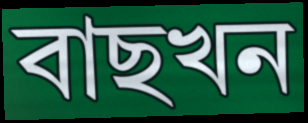
বাছখন